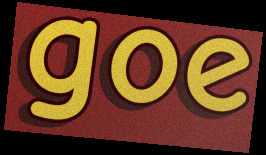
goe